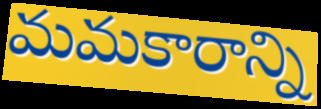
మమకారాన్ని